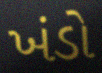
ખંડો